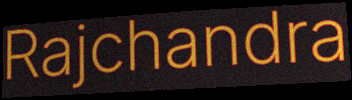
Rajchandra